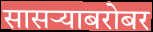
सासऱ्याबरोबर